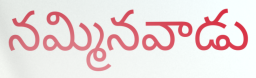
నమ్మినవాడు